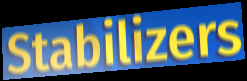
Stabilizers